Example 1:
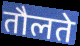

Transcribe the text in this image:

तौलते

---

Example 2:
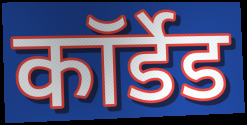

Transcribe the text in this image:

कॉर्डेड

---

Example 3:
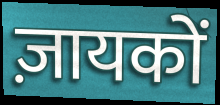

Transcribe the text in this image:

ज़ायकों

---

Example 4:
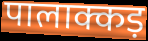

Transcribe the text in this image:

पालाक्कड़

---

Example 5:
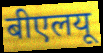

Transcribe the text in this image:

बीएलयू